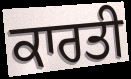
ਕਾਰਤੀ